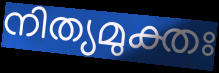
നിത്യമുക്തഃ